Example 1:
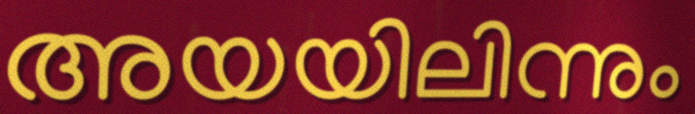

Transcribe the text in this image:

അയയിലിന്നും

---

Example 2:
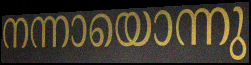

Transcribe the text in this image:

നന്നായൊന്നു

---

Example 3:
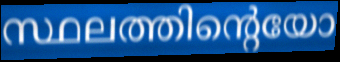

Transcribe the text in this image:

സ്ഥലത്തിന്റെയോ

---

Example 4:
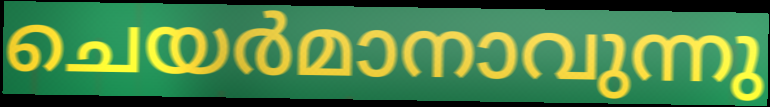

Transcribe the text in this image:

ചെയർമാനാവുന്നു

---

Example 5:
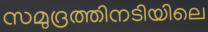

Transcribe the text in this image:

സമുദ്രത്തിനടിയിലെ